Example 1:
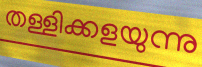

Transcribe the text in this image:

തള്ളിക്കളയുന്നു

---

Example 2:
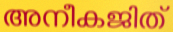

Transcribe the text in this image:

അനീകജിത്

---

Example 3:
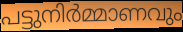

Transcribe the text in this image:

പട്ടുനിർമ്മാണവും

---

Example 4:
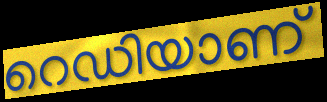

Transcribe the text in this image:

റെഡിയാണ്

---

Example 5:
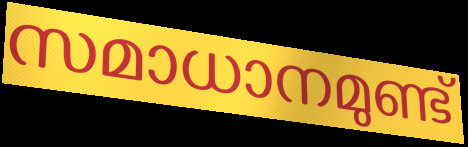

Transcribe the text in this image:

സമാധാനമുണ്ട്